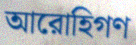
আরোহিগণ